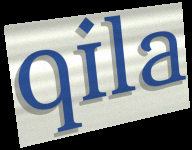
qila